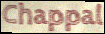
Chappal